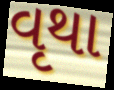
વૃથા